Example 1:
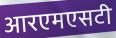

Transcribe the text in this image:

आरएमएसटी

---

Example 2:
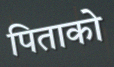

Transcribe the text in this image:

पिताको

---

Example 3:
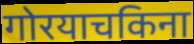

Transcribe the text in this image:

गोरयाचकिना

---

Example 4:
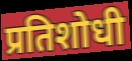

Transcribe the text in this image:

प्रतिशोधी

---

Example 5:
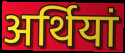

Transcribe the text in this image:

अर्थियां